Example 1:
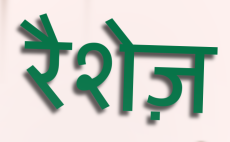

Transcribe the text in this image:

रैशेज़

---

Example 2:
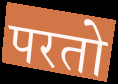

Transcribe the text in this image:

परतो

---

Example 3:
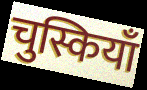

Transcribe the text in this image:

चुस्कियाँ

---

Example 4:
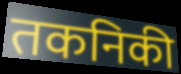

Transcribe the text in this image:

तकनिकी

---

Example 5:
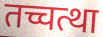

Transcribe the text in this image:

तच्चत्था